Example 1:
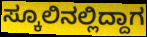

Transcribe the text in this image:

ಸ್ಕೂಲಿನಲ್ಲಿದ್ದಾಗ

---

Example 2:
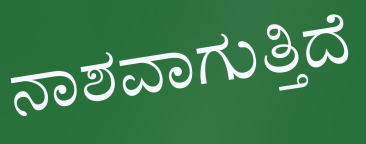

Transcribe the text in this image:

ನಾಶವಾಗುತ್ತಿದೆ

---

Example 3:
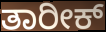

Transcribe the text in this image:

ತಾರೀಕ್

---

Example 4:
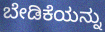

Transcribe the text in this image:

ಬೇಡಿಕೆಯನ್ನು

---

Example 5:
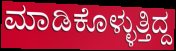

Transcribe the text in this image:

ಮಾಡಿಕೊಳ್ಳುತ್ತಿದ್ದ